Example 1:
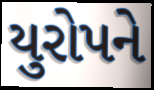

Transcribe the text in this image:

યુરોપને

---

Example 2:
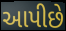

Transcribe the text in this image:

આપીછે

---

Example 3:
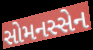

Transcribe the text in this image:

સોમનસ્સેન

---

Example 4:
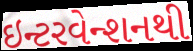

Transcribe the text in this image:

ઇન્ટરવેન્શનથી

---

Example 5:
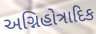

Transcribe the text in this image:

અગ્નિહોત્રાદિક